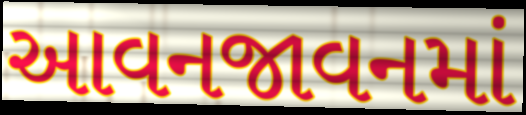
આવનજાવનમાં